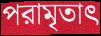
পরামৃতাৎ